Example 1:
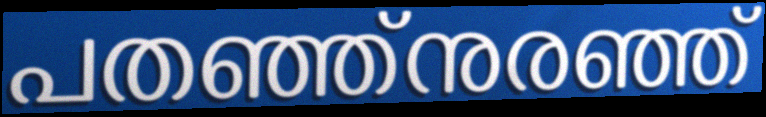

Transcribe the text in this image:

പതഞ്ഞ്നുരഞ്ഞ്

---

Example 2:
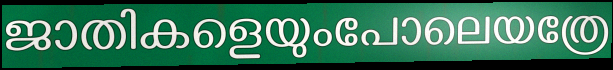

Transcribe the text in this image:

ജാതികളെയുംപോലെയത്രേ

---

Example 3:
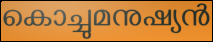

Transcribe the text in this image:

കൊച്ചുമനുഷ്യൻ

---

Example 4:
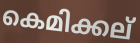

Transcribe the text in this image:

കെമിക്കല്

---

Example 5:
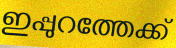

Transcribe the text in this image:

ഇപ്പുറത്തേക്ക്